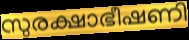
സുരക്ഷാഭീഷണി